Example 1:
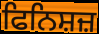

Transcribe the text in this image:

ਫਿਨਿਸ਼ਜ਼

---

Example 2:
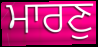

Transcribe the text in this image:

ਮਾਰਣੁ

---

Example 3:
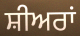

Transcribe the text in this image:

ਸ਼ੀਅਰਾਂ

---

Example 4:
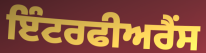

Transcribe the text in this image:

ਇੰਟਰਫੀਅਰੈਂਸ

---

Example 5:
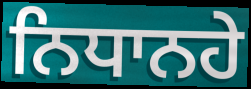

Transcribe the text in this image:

ਨਿਧਾਨਹੇ